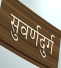
सुवर्णदुर्ग